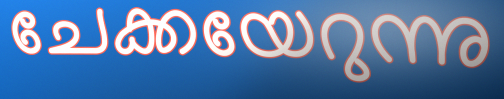
ചേക്കയേറുന്നു